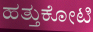
ಹತ್ತುಕೋಟಿ